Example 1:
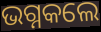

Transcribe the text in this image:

ଭଗ୍ନକଲେ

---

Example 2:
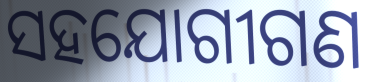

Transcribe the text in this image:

ସହଯୋଗୀଗଣ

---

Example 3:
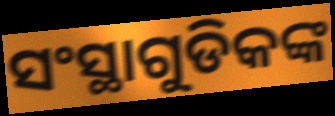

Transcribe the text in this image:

ସଂସ୍ଥାଗୁଡିକଙ୍କ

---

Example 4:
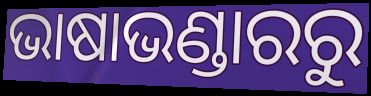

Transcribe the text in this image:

ଭାଷାଭଣ୍ଡାରରୁ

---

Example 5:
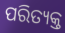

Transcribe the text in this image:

ପରିତ୍ଯକ୍ତ